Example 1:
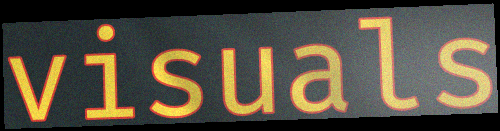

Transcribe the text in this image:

visuals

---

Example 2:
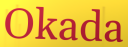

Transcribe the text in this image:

Okada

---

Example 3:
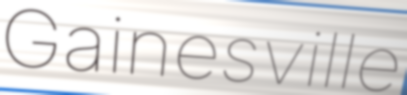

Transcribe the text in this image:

Gainesville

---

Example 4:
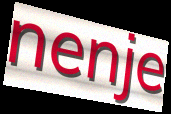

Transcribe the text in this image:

nenje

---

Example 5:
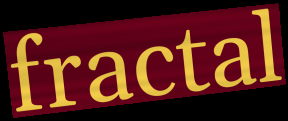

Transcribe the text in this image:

fractal